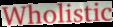
Wholistic